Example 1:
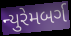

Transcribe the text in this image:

ન્યુરેમબર્ગ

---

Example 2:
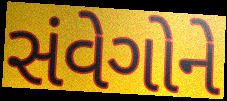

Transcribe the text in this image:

સંવેગોને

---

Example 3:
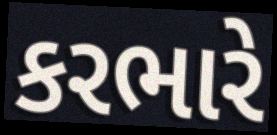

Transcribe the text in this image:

કરભારે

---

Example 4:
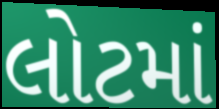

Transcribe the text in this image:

લોટમાં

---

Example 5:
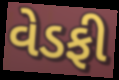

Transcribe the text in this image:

વેડફી